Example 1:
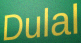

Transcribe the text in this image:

Dulal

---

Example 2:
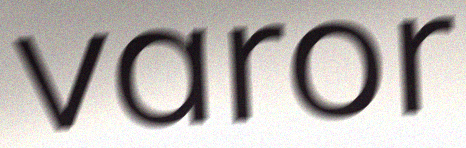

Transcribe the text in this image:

varor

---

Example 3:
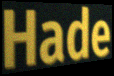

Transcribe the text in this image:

Hade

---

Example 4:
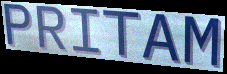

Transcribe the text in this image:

PRITAM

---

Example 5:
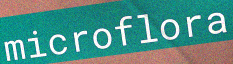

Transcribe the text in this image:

microflora